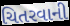
ચિતરવાની